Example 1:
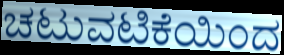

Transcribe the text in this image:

ಚಟುವಟಿಕೆಯಿಂದ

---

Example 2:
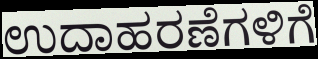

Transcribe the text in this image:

ಉದಾಹರಣೆಗಳಿಗೆ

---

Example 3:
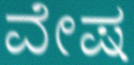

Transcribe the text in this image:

ವೇಷ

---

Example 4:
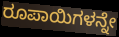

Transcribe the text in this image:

ರೂಪಾಯಿಗಳನ್ನೇ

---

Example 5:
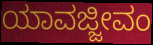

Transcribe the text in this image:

ಯಾವಜ್ಜೀವಂ